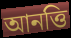
আনত্তি